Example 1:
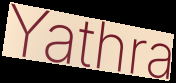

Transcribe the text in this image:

Yathra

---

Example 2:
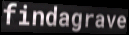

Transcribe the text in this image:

findagrave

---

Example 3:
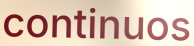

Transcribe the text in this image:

continuos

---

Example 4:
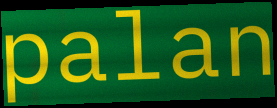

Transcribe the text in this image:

palan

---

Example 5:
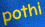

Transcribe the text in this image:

pothi